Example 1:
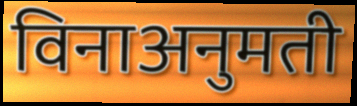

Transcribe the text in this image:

विनाअनुमती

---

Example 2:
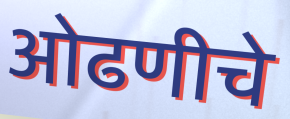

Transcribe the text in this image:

ओढणीचे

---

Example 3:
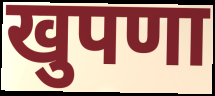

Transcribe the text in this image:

खुपणा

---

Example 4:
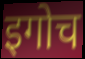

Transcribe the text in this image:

इगोच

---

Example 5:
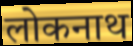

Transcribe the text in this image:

लोकनाथ